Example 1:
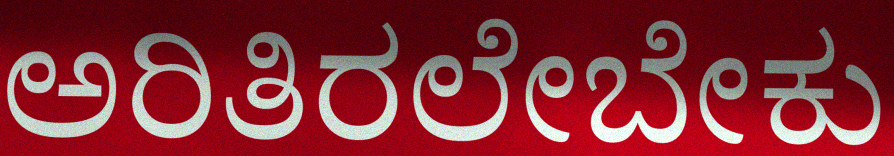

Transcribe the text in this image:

ಅರಿತಿರಲೇಬೇಕು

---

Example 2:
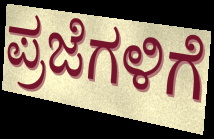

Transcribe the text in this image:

ಪ್ರಜೆಗಳಿಗೆ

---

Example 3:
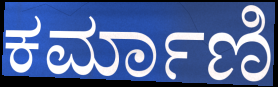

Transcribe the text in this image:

ಕರ್ಮಾಣಿ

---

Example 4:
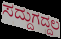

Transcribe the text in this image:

ಸದ್ದುಗದ್ದಲ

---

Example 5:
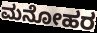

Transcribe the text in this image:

ಮನೋಹರ